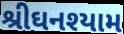
શ્રીઘનશ્યામ